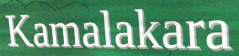
Kamalakara